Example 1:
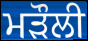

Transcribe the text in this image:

ਮੜੌਲੀ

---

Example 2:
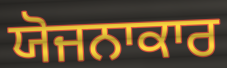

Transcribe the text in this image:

ਯੋਜਨਾਕਾਰ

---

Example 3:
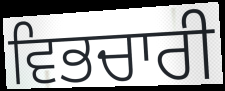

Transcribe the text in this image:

ਵਿਭਚਾਰੀ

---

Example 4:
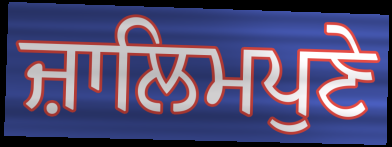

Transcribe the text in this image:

ਜ਼ਾਲਿਮਪੁਣੇ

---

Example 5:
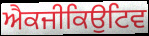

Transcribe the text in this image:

ਐਕਜੀਕਿਉਟਿਵ